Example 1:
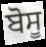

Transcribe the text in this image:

ਬੋਸੂ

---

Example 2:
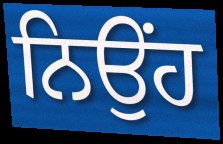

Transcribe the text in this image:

ਨਿਉਂਹ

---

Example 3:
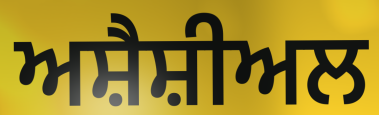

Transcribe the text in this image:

ਅਸ਼ੈਸ਼ੀਅਲ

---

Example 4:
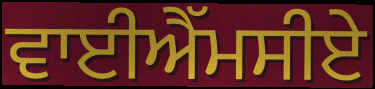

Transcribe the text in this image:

ਵਾਈਐੱਮਸੀਏ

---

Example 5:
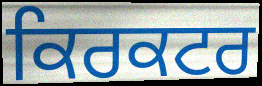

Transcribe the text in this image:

ਕਿਰਕਟਰ